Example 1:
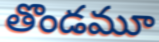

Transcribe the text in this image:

తొండమూ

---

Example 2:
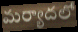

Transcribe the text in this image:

మర్యాదలో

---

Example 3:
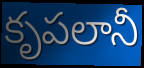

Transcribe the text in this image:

కృపలానీ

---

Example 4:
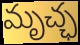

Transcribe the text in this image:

మృచ్ఛ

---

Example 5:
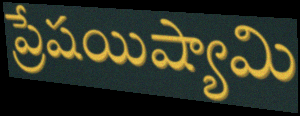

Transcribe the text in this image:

ప్రేషయిష్యామి